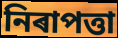
নিৰাপত্তা